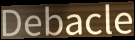
Debacle